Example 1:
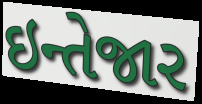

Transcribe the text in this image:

ઇન્તેજાર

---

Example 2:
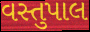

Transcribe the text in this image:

વસ્તુપાલ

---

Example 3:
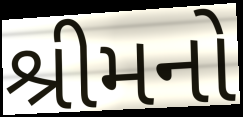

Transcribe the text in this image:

શ્રીમનો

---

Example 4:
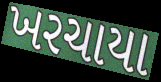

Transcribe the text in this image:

ખરચાયા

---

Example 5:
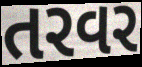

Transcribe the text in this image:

તરવર